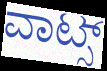
ವಾಟ್ಸ್